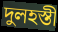
দুলহস্তী